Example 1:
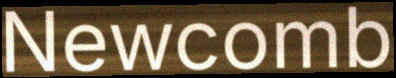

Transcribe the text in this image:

Newcomb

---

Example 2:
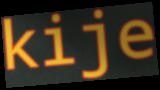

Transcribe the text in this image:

kije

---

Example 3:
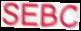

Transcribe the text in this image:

SEBC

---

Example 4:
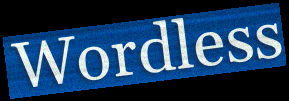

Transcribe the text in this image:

Wordless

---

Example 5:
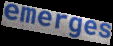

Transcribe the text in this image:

emerges